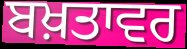
ਬਖ਼ਤਾਵਰ